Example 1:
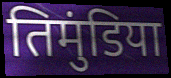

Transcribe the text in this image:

तिमुंडिया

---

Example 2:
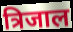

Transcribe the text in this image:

त्रिजाल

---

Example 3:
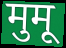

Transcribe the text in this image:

मुमू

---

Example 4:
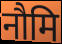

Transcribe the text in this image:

नौमि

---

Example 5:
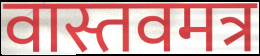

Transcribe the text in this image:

वास्तवमत्र